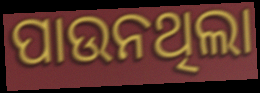
ପାଉନଥିଲା